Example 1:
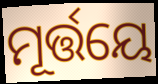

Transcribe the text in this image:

ମୂର୍ତ୍ତୟେ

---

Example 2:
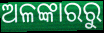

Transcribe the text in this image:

ଅଳଙ୍କାରରୁ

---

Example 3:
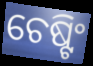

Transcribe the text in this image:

ଚେଷ୍ଟିଂ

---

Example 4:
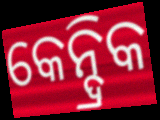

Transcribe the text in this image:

କେନ୍ଦ୍ରିକ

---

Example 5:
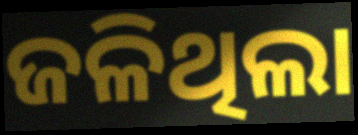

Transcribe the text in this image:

ଜଳିଥିଲା